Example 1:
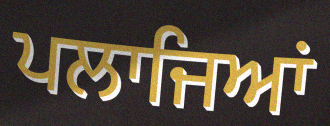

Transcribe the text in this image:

ਪਲਾਜਿਆਂ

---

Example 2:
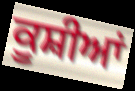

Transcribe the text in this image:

ਕੂਸ਼ੀਆਂ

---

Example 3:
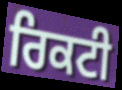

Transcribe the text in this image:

ਰਿਕਟੀ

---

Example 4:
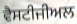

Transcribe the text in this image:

ਵੈਸਟੀਜੀਅਲ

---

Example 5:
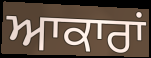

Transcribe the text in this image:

ਆਕਾਰਾਂ